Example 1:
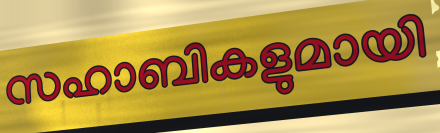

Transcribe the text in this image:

സഹാബികളുമായി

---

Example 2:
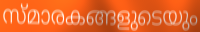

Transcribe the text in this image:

സ്മാരകങ്ങളുടെയും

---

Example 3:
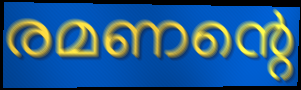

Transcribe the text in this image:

രമണന്റെ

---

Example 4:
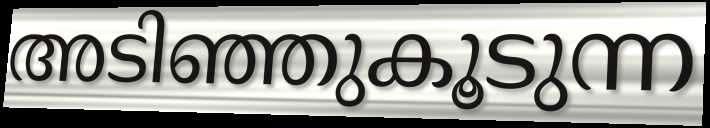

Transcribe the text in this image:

അടിഞ്ഞുകൂടുന്ന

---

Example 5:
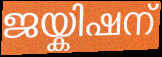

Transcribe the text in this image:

ജയ്കിഷന്